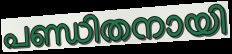
പണ്ഡിതനായി